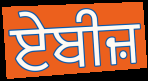
ਏਬੀਜ਼